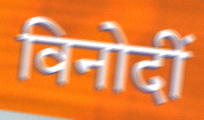
विनोदीं